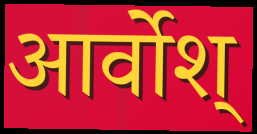
आर्वोश्